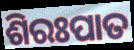
ଶିରଃପାତ